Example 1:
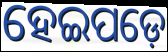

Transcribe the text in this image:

ହେଇପଡ଼େ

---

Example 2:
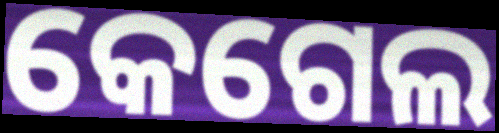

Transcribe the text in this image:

କେଗେଲ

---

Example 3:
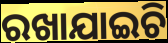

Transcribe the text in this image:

ରଖାଯାଇଚି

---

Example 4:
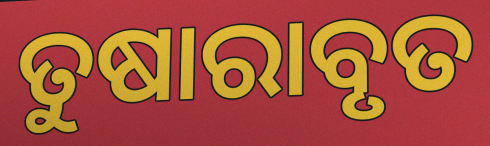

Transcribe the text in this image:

ତୁଷାରାବୃତ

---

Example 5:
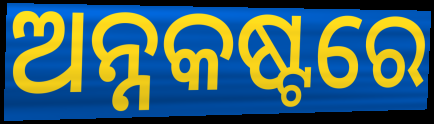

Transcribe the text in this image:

ଅନ୍ନକଷ୍ଟରେ